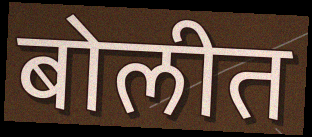
बोलीत